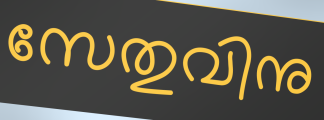
സേതുവിനു